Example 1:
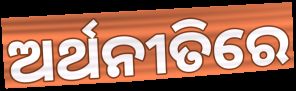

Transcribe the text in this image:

ଅର୍ଥନୀତିରେ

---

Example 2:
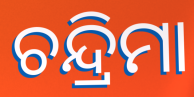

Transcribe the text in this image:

ଚନ୍ଦ୍ରିମା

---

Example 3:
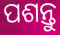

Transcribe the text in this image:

ପଶନ୍ତୁ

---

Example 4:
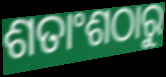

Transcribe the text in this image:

ଶତାଂଶଠାରୁ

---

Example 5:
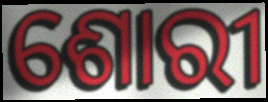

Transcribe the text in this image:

ଶୋରୀ